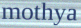
mothya